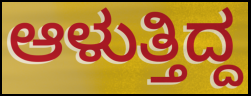
ಆಳುತ್ತಿದ್ದ